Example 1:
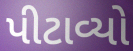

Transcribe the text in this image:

પીટાવ્યો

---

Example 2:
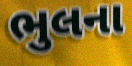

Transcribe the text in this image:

ભુલના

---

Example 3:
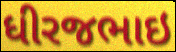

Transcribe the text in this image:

ધીરજભાઇ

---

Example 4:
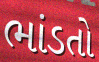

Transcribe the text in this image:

ભાંડતો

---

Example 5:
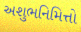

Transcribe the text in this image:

અશુભનિમિત્તો